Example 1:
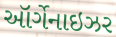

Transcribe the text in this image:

ઑર્ગેનાઇઝર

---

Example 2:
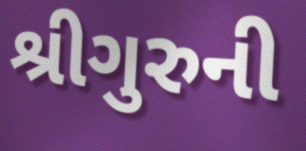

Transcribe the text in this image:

શ્રીગુરુની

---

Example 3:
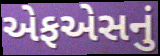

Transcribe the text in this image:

એફએસનું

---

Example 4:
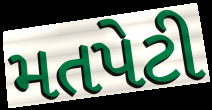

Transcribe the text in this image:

મતપેટી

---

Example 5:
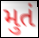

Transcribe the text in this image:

મુતં